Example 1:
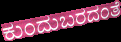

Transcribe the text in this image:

ಕುಂದುಬರದಂತೆ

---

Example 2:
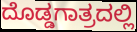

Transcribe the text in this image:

ದೊಡ್ಡಗಾತ್ರದಲ್ಲಿ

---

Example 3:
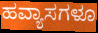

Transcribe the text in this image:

ಹವ್ಯಾಸಗಳೂ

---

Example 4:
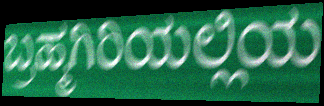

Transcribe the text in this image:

ಬ್ರಹ್ಮಗಿರಿಯಲ್ಲಿಯ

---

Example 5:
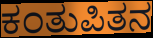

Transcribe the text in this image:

ಕಂತುಪಿತನ